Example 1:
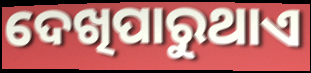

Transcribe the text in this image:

ଦେଖିପାରୁଥାଏ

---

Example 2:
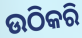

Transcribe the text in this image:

ଉଠିକରି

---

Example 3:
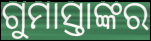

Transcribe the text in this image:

ଗୁମାସ୍ତାଙ୍କର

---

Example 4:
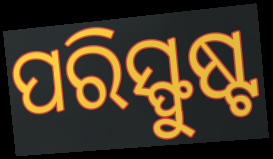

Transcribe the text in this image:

ପରିସ୍ଫୁଷ୍ଟ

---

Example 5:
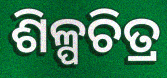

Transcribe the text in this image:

ଶିଳ୍ପଚିତ୍ର